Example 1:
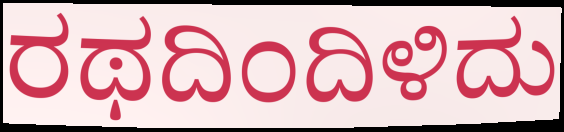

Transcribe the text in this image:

ರಥದಿಂದಿಳಿದು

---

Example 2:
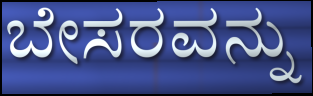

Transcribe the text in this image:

ಬೇಸರವನ್ನು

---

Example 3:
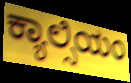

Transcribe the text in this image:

ಕ್ಯಾಲ್ಸಿಯಂ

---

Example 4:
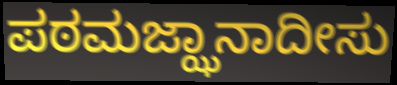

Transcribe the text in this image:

ಪಠಮಜ್ಝಾನಾದೀಸು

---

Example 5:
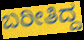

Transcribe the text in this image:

ಬರೀತಿದ್ದ